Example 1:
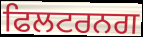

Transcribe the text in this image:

ਫਿਲਟਰਨਗ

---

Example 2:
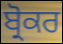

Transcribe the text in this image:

ਬ੍ਰੋਕਰ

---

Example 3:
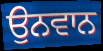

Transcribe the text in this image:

ਉਨਵਾਨ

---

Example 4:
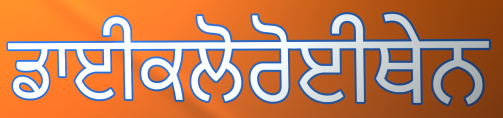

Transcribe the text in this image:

ਡਾਈਕਲੋਰੋਈਥੇਨ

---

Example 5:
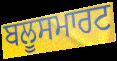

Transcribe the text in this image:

ਬਲੂਸਮਾਰਟ